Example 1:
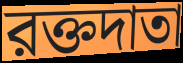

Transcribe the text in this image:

রক্তদাতা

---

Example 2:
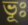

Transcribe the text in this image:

ভূঃ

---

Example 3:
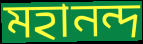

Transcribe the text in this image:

মহানন্দ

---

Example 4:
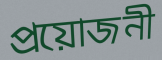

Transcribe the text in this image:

প্রয়োজনী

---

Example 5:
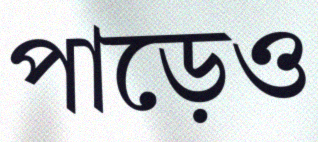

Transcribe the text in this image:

পাড়েও